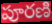
పూరణి